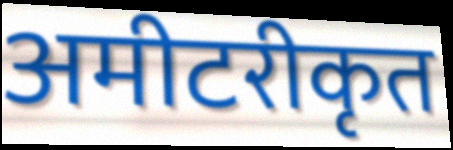
अमीटरीकृत